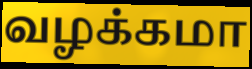
வழக்கமா